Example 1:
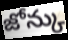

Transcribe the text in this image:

జోన్కు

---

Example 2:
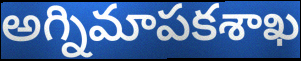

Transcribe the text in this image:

అగ్నిమాపకశాఖ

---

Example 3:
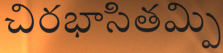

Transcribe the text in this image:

చిరభాసితమ్పి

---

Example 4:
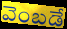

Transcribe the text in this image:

వెంబడే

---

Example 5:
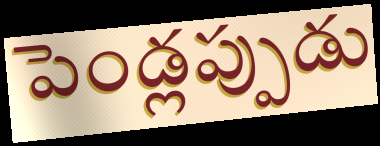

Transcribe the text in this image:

పెండ్లప్పుడు